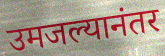
उमजल्यानंतर